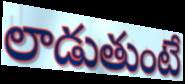
లాడుతుంటే